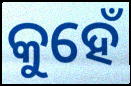
କୁହେଁ